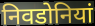
निवडोनियां